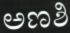
ಅಣಶಿ